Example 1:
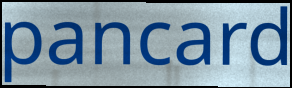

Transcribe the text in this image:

pancard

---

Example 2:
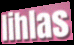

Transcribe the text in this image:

lihlas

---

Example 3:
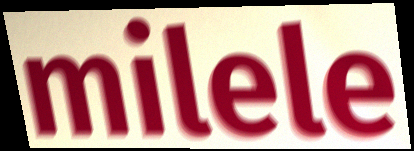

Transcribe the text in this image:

milele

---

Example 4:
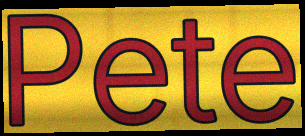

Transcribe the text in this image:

Pete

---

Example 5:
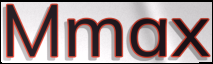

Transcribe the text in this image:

Mmax